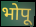
भोपू